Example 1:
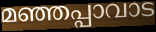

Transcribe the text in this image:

മഞ്ഞപ്പാവാട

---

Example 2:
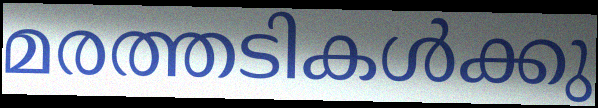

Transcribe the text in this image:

മരത്തടികൾക്കു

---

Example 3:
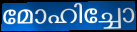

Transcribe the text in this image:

മോഹിച്ചോ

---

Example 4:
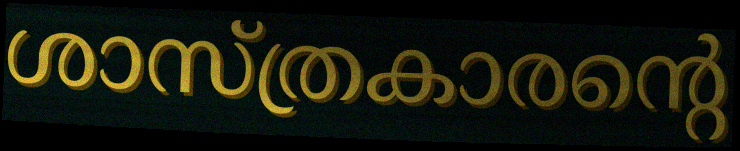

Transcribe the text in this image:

ശാസ്ത്രകാരന്റെ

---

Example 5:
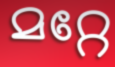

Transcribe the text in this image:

മറ്റേ